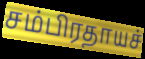
சம்பிரதாயச்